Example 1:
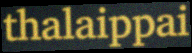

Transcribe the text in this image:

thalaippai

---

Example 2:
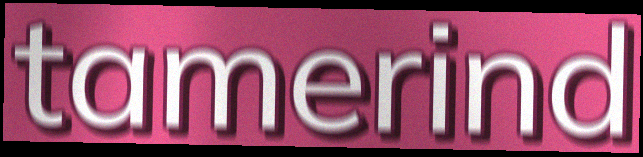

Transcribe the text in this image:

tamerind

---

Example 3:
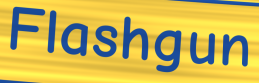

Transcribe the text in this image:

Flashgun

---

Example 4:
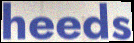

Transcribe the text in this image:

heeds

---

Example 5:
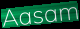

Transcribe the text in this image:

Aasam